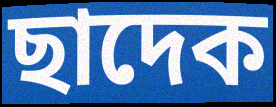
ছাদেক